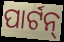
ପାର୍ଟନ୍